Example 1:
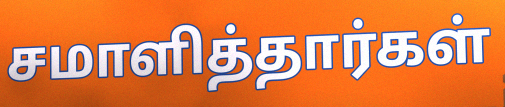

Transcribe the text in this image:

சமாளித்தார்கள்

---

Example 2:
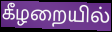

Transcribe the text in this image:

கீழறையில்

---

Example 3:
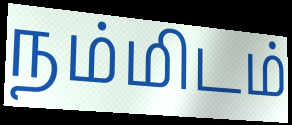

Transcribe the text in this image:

நம்மிடம்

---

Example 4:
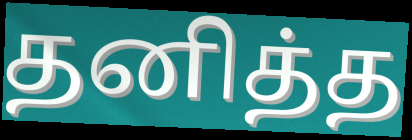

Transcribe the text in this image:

தனித்த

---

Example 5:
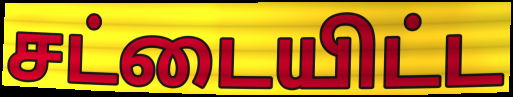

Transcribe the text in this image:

சட்டையிட்ட